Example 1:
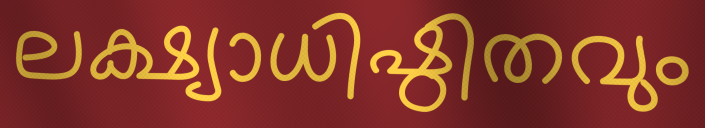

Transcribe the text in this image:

ലക്ഷ്യാധിഷ്ഠിതവും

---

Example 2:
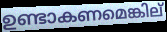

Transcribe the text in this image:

ഉണ്ടാകണമെങ്കില്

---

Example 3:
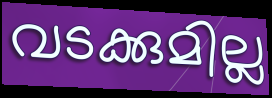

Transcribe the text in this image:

വടക്കുമില്ല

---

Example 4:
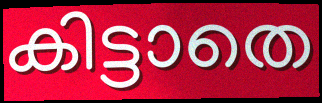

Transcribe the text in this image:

കിട്ടാതെ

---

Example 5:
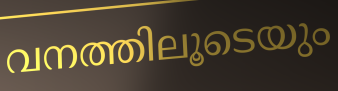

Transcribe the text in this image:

വനത്തിലൂടെയും